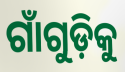
ଗାଁଗୁଡ଼ିକୁ